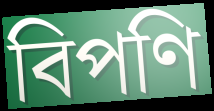
বিপণি